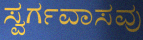
ಸ್ವರ್ಗವಾಸವು